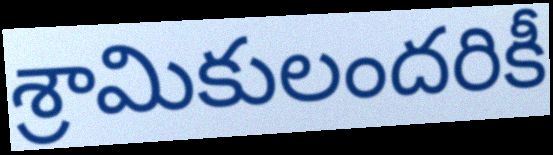
శ్రామికులందరికీ